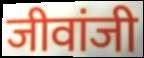
जीवांजी